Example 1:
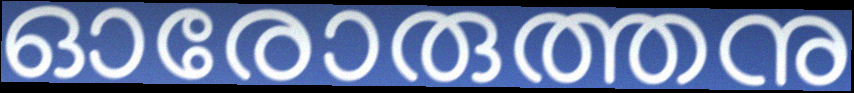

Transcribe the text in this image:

ഓരോരുത്തനു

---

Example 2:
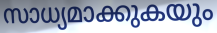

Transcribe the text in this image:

സാധ്യമാക്കുകയും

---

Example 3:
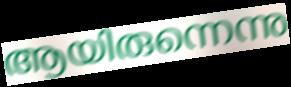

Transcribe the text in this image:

ആയിരുന്നെന്നു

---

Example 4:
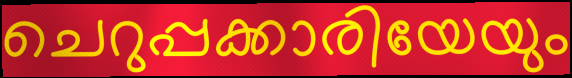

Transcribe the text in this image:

ചെറുപ്പക്കാരിയേയും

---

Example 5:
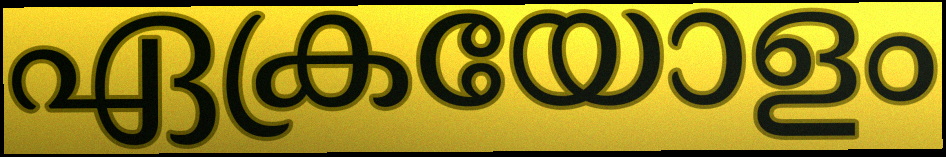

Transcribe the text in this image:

ഏക്രയോളം